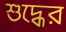
শুদ্ধের